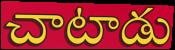
చాటాడు